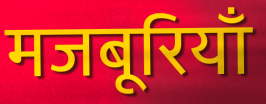
मजबूरियाँ